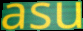
asu